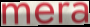
mera